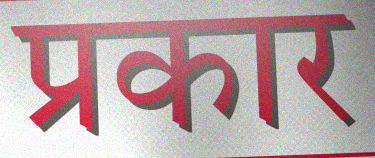
प्रकार